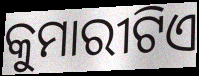
କୁମାରୀଟିଏ